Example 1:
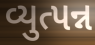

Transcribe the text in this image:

વ્યુત્પન્ન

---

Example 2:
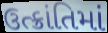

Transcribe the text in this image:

ઉત્ક્રાંતિમાં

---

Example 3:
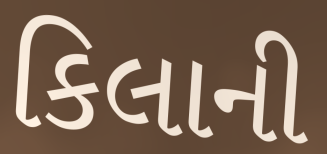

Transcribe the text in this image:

કિલાની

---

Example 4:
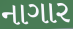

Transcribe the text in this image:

નાગાર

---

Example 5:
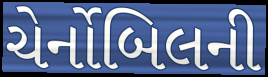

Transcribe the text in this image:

ચેર્નોબિલની